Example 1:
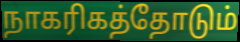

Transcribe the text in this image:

நாகரிகத்தோடும்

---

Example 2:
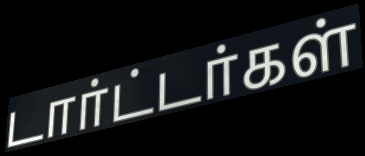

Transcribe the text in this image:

டார்ட்டர்கள்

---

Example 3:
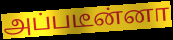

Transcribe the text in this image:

அப்படீன்னா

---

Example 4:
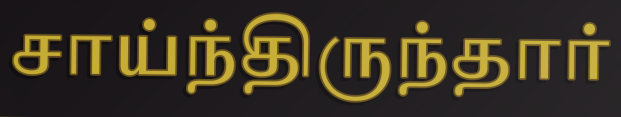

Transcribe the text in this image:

சாய்ந்திருந்தார்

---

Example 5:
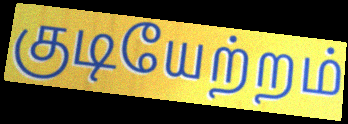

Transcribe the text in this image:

குடியேற்றம்